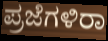
ಪ್ರಜೆಗಳಿರಾ